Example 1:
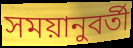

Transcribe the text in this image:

সময়ানুবর্তী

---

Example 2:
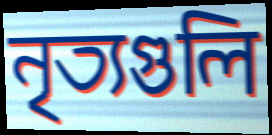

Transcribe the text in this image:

নৃত্যগুলি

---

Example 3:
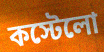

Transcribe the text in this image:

কস্টেলো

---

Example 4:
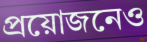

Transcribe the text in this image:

প্রয়োজনেও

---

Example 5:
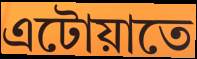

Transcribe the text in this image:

এটোয়াতে